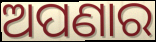
ଅପଣାର